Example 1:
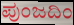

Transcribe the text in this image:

ಪುಂಜದಿಂ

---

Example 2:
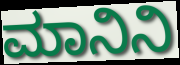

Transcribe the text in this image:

ಮಾನಿನಿ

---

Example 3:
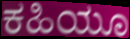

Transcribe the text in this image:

ಕಹಿಯೂ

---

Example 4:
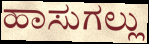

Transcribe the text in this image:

ಹಾಸುಗಲ್ಲು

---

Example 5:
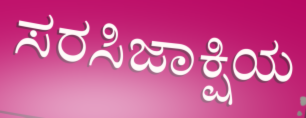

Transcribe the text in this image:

ಸರಸಿಜಾಕ್ಷಿಯ